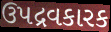
ઉપદ્રવકારક